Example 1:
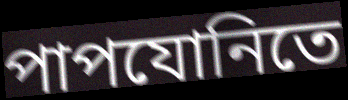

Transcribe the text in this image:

পাপযোনিতে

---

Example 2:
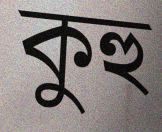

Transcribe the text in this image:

কুহু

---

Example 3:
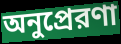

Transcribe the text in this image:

অনুপ্রেরণা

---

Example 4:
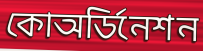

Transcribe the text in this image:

কোঅর্ডিনেশন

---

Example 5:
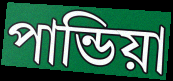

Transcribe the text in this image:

পান্ডিয়া